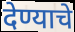
देण्याचे